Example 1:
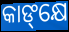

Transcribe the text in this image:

କାଙ୍‌କ୍ଷେ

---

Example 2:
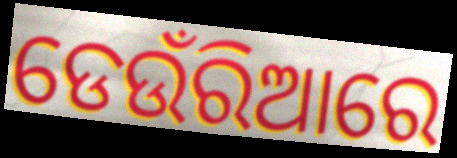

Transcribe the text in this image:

ଡେଉଁରିଆରେ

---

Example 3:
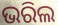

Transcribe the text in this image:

ଭରିଲ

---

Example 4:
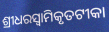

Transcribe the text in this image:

ଶ୍ରୀଧରସ୍ଵାମିକୃତଟୀକା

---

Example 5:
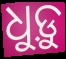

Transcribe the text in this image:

ଧୁଡ଼ୁ